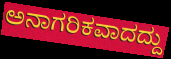
ಅನಾಗರಿಕವಾದದ್ದು